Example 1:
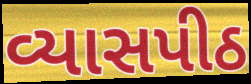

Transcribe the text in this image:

વ્યાસપીઠ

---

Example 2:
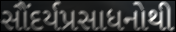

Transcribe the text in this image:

સૌંદર્યપ્રસાધનોથી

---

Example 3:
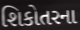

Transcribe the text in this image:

શિકોતરના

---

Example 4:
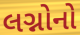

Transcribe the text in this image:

લગ્નોનો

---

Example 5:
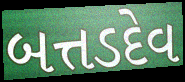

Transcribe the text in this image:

બત્તડદેવ